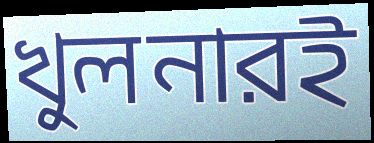
খুলনারই